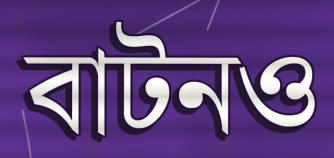
বাটনও